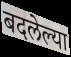
बदलेल्या